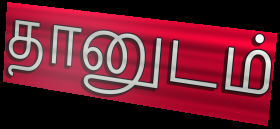
தானுடம்